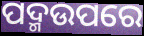
ପଦ୍ମଉପରେ